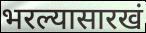
भरल्यासारखं